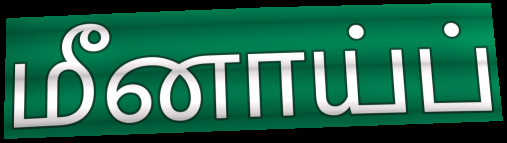
மீனாய்ப்